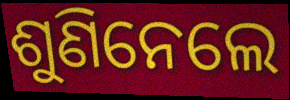
ଶୁଣିନେଲେ